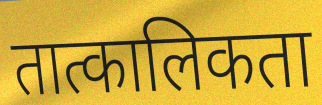
तात्कालिकता